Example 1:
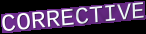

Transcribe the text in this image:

CORRECTIVE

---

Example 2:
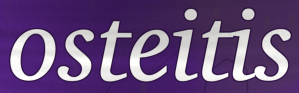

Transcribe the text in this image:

osteitis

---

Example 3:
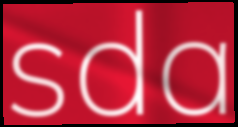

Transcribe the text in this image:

sda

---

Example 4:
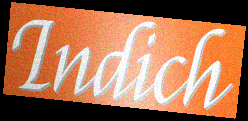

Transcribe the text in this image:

Indich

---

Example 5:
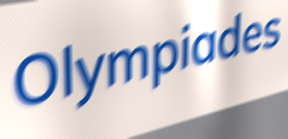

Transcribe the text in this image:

Olympiades